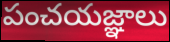
పంచయజ్ఞాలు